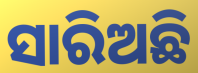
ସାରିଅଛି